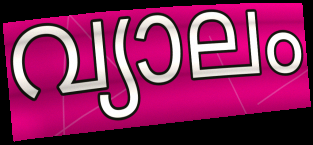
വ്യാലം